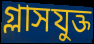
গ্লাসযুক্ত